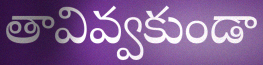
తావివ్వకుండా